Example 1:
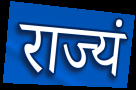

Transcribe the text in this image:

राज्यं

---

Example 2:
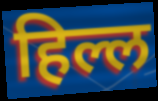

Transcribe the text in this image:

हिल्ल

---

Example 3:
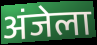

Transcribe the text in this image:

अंजेला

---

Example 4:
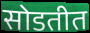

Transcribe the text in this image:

सोडतीत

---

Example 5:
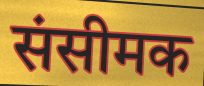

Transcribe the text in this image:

संसीमक